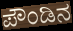
ಪೌಂಡಿನ